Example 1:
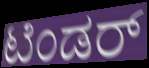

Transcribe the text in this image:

ಟೆಂಡರ್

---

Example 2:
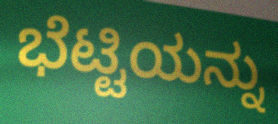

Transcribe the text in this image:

ಭೆಟ್ಟಿಯನ್ನು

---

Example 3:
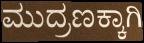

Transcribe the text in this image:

ಮುದ್ರಣಕ್ಕಾಗಿ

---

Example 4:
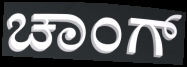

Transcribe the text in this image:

ಚಾಂಗ್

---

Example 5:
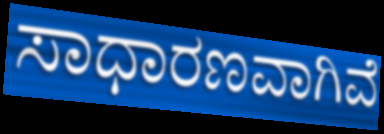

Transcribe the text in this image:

ಸಾಧಾರಣವಾಗಿವೆ